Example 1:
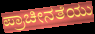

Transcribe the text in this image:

ಪ್ರಾಚೀನತೆಯು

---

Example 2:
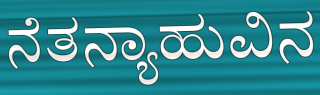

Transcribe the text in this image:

ನೆತನ್ಯಾಹುವಿನ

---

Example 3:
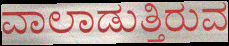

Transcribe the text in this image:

ವಾಲಾಡುತ್ತಿರುವ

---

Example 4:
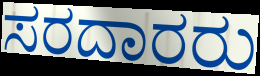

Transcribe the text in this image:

ಸರದಾರರು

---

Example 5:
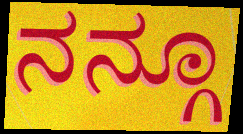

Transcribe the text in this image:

ನನ್ಗೂ